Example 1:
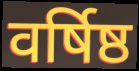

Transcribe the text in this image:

वर्षिष्ठ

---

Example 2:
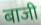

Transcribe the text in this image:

बाजी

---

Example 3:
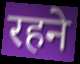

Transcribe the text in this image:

रहने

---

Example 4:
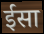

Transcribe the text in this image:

ईसा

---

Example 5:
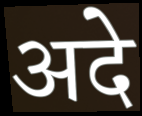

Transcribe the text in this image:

अदे